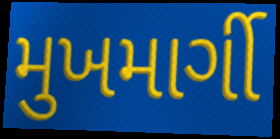
મુખમાર્ગી